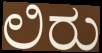
ಲಿರು